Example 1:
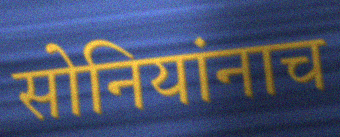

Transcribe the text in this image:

सोनियांनाच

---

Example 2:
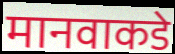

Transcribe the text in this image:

मानवाकडे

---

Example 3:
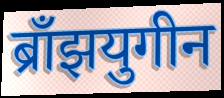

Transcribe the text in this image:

ब्राँझयुगीन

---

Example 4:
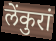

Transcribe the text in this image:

लेंकुरां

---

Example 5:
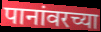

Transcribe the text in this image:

पानांवरच्या